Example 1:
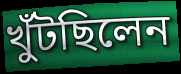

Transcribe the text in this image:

খুঁটছিলেন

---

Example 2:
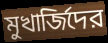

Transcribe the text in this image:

মুখার্জিদের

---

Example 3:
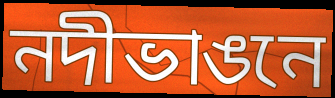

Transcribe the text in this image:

নদীভাঙনে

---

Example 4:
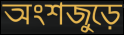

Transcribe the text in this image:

অংশজুড়ে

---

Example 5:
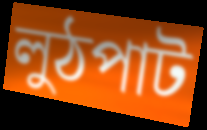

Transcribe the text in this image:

লুঠপাট